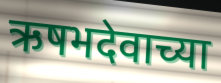
ऋषभदेवाच्या